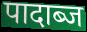
पादाब्ज